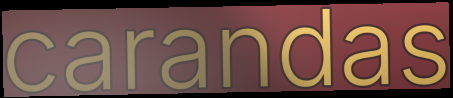
carandas